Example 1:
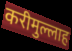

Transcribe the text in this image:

करीमुल्लाह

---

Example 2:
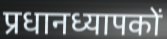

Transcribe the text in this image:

प्रधानध्यापकों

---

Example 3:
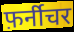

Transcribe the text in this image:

फ़र्नीचर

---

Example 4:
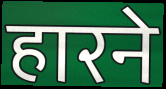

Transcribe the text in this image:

हारने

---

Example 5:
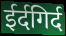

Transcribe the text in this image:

ईर्दगिर्द